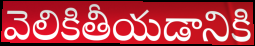
వెలికితీయడానికి